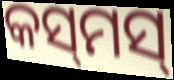
କସ୍‌ମସ୍